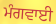
ਮੰਗਵਾਈ